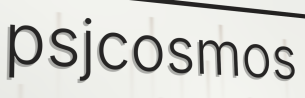
psjcosmos